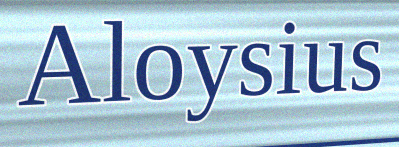
Aloysius